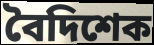
বৈদিশেক